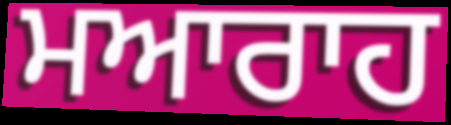
ਮਆਰਾਹ